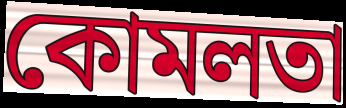
কোমলতা